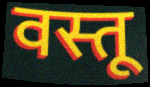
वस्तू